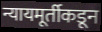
न्यायमूर्तीकडून